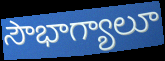
సౌభాగ్యాలూ